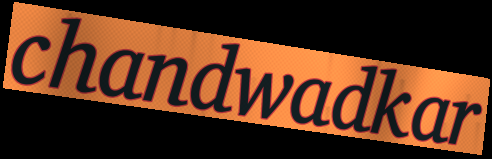
chandwadkar